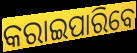
କରାଇପାରିବେ